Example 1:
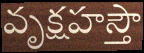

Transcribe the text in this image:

వృక్షహస్తౌ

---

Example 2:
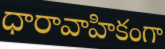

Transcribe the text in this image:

ధారావాహికంగా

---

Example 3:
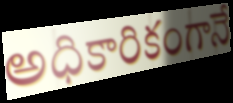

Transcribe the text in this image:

అధికారికంగానే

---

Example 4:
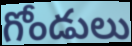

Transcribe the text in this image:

గోండులు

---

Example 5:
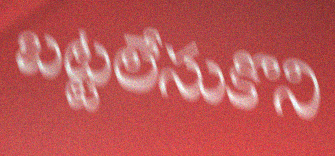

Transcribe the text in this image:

బట్టలేసుకొని